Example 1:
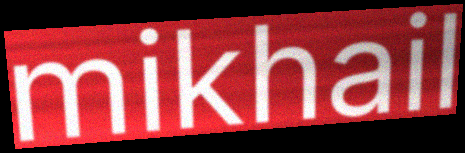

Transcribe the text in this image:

mikhail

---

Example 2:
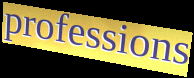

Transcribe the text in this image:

professions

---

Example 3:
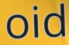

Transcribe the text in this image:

oid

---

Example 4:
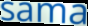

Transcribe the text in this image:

sama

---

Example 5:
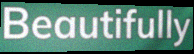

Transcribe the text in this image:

Beautifully